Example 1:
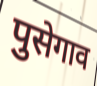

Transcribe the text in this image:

पुसेगाव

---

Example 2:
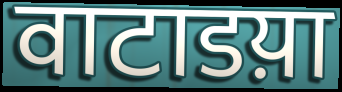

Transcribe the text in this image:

वाटाडय़ा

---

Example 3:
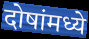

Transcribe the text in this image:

दोषांमध्ये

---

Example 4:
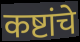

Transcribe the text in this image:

कष्टांचे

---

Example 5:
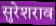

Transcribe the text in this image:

सुरेशराव